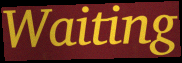
Waiting